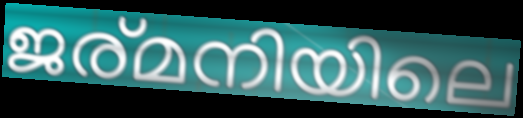
ജര്മനിയിലെ